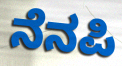
ನೆನಪಿ